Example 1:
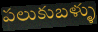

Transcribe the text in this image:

పలుకుబళ్ళు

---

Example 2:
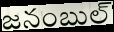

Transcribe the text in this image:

జనంబుల్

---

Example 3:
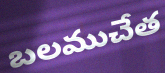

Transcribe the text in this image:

బలముచేత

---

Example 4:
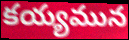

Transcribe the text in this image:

కయ్యమున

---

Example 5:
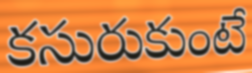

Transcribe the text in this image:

కసురుకుంటే